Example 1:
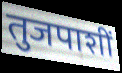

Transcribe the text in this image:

तुजपाशीं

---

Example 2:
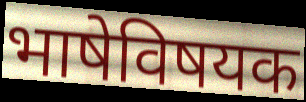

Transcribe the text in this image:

भाषेविषयक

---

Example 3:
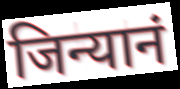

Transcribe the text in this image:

जिन्यानं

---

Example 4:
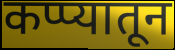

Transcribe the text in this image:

कप्प्यातून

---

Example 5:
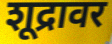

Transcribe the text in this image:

शूद्रावर